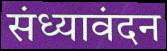
संध्यावंदन